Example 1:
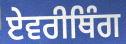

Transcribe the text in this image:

ਏਵਰੀਥਿੰਗ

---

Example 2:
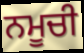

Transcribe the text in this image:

ਨਮੂਚੀ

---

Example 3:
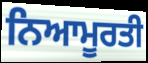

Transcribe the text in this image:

ਨਿਆਮੂਰਤੀ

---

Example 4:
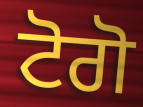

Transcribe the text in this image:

ਟੋਗੋ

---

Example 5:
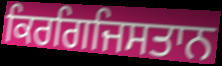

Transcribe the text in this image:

ਕਿਰਗਿਜਿਸਤਾਨ